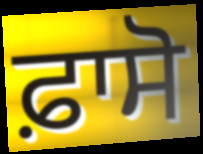
ਫ਼ਾਸੋ